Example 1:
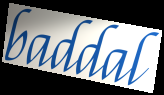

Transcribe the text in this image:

baddal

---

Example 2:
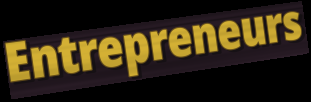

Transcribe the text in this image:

Entrepreneurs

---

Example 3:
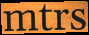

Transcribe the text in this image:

mtrs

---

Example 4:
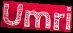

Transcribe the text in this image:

Umri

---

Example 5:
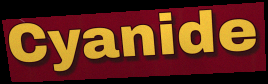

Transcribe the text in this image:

Cyanide